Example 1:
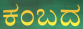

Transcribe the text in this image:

ಕಂಬದ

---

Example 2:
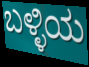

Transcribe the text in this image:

ಬಳ್ಳಿಯ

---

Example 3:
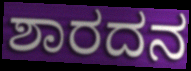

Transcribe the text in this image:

ಶಾರದನ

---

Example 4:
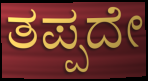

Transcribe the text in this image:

ತಪ್ಪದೇ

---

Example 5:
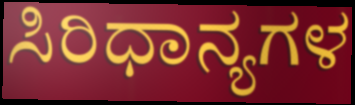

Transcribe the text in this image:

ಸಿರಿಧಾನ್ಯಗಳ